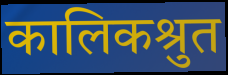
कालिकश्रुत